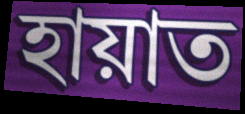
হায়াত